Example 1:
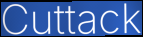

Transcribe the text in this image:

Cuttack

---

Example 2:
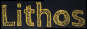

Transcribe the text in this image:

Lithos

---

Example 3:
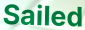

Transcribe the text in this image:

Sailed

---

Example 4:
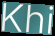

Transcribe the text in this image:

Khi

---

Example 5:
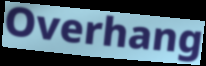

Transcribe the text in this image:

Overhang